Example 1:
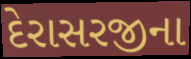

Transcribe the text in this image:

દેરાસરજીના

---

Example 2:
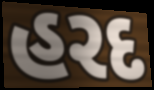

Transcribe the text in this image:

હરદ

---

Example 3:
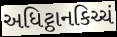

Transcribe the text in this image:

અધિટ્ઠાનકિચ્ચં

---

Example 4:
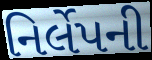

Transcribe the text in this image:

નિર્લેપની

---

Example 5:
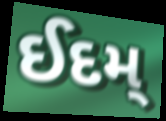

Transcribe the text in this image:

ઈદમ્